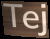
Tej